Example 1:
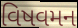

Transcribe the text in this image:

વિષવમન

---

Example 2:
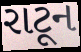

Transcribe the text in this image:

રાટૂન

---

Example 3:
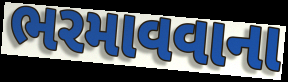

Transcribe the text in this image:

ભરમાવવાના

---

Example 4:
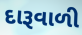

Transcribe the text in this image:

દારૂવાળી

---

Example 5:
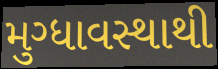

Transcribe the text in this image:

મુગ્ધાવસ્થાથી